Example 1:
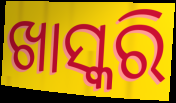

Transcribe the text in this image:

ଖାସ୍କରି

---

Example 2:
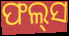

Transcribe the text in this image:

ଫଲ୍‌ସ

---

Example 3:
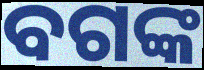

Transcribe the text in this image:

ବଗଙ୍କ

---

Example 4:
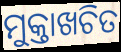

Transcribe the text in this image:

ମୁକ୍ତାଖଚିତ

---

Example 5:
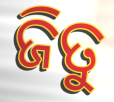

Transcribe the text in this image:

ଜିତୁ